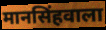
मानसिंहवाला